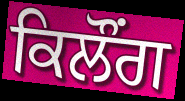
ਕਿਲੌਂਗ